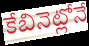
కేబినెట్లోనే